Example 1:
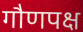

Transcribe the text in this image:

गौणपक्ष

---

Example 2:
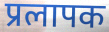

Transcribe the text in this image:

प्रलापक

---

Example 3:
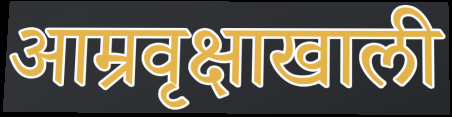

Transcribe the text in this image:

आम्रवृक्षाखाली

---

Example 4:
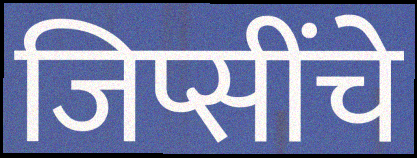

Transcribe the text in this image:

जिप्सींचे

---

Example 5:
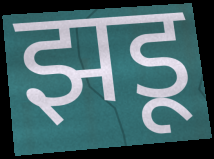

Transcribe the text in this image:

झडू